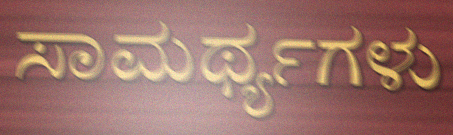
ಸಾಮರ್ಥ್ಯಗಳು